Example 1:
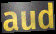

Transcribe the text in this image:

aud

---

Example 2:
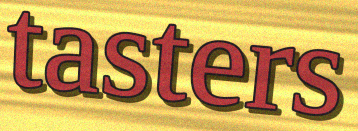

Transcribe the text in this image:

tasters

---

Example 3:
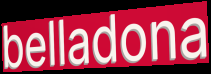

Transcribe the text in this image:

belladona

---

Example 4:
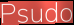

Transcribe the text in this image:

Psudo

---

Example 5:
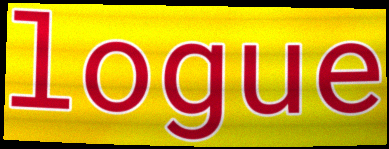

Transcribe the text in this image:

logue